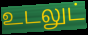
உடலுட்